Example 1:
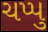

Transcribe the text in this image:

ચપ્પુ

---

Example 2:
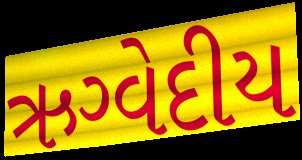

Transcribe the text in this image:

ઋગ્વેદીય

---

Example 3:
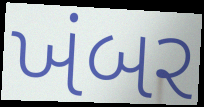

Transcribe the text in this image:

ખંબર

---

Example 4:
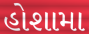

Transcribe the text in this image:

હોશામા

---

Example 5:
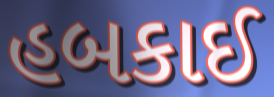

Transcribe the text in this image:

હબકાઈ